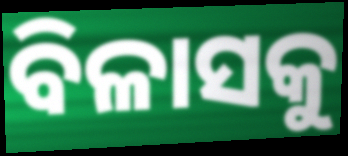
ବିଳାସକୁ